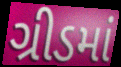
ગ્રીડમાં